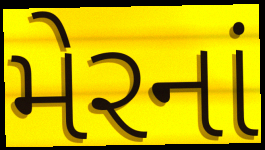
મેરનાં